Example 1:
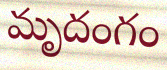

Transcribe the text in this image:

మృదంగం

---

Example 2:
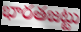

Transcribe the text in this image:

భారతజట్టు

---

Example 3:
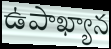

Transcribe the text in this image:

ఉపాఖ్యాన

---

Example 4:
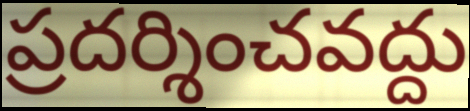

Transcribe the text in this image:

ప్రదర్శించవద్దు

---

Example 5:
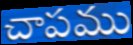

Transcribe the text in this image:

చాపము